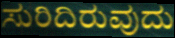
ಸುರಿದಿರುವುದು